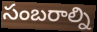
సంబరాల్ని